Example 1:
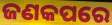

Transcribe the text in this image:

ଜଣକପରେ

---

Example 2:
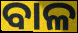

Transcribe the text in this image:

ବାଳ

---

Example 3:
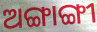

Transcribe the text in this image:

ଅଙ୍ଗାଙ୍ଗୀ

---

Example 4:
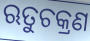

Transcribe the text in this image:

ଋତୁଚକ୍ରଣ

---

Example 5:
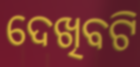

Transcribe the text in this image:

ଦେଖିବଟି